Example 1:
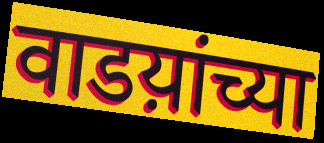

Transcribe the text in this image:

वाडय़ांच्या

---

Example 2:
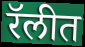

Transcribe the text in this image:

रॅलीत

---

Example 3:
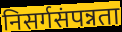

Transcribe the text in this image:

निसर्गसंपन्नता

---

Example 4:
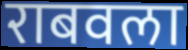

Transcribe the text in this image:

राबवला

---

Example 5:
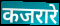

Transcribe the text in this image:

कजरारे